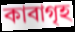
কাবাগৃহ